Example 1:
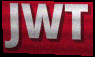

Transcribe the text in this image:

JWT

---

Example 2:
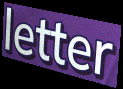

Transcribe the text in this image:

letter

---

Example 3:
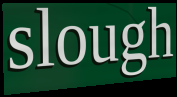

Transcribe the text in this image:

slough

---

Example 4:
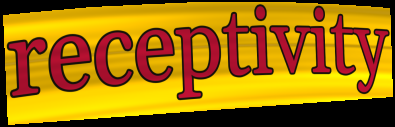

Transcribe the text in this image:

receptivity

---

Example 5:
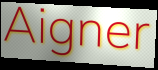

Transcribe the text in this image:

Aigner